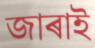
জাৰাই